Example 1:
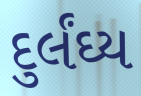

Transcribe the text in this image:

દુર્લંઘ્ય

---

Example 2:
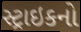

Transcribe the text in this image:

સ્ટ્રાઇકનો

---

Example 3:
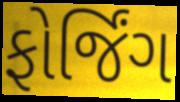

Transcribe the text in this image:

ફોર્જિંગ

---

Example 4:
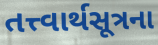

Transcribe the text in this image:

તત્ત્વાર્થસૂત્રના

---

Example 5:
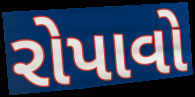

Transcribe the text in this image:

રોપાવો